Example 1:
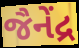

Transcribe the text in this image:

જૈનેંદ્ર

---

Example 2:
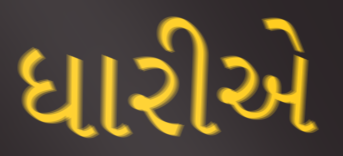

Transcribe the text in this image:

ધારીએ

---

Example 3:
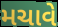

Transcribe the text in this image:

મચાવે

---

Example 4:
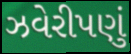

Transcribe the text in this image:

ઝવેરીપણું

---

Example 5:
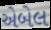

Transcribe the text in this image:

એબેલ